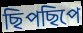
ছিপছিপে